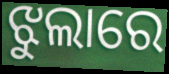
ଝୁଲାରେ